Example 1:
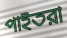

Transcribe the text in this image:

পাইতরা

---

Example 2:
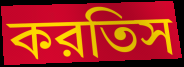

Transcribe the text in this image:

করতিস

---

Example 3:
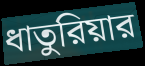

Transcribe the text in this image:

ধাতুরিয়ার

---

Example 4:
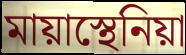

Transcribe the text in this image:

মায়াস্থেনিয়া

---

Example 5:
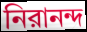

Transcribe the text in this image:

নিরানন্দ